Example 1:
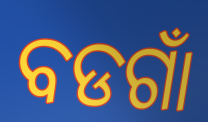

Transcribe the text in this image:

ବଡଗାଁ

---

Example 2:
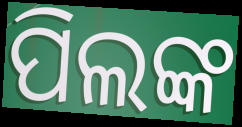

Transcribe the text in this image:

ପିଲଙ୍କ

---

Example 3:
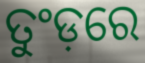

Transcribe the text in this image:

ତୁଂଡ଼ରେ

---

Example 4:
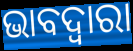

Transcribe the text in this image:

ଭାବଦ୍ଵାରା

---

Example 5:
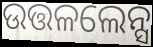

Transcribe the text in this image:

ଉତ୍ତଳଲେନ୍ସ